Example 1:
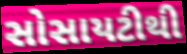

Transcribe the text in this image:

સોસાયટીથી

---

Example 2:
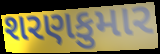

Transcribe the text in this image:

શરણકુમાર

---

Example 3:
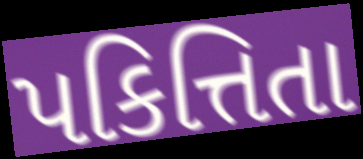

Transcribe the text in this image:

પકિત્તિતા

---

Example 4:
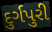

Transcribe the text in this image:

દુર્ગપુરી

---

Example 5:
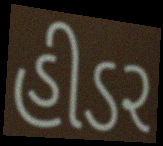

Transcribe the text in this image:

હીડર